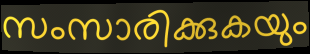
സംസാരിക്കുകയും